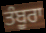
ਤੰਬੂਰਾ